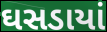
ઘસડાયાં